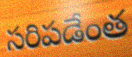
సరిపడేంత